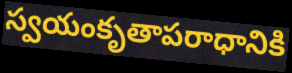
స్వయంకృతాపరాధానికి